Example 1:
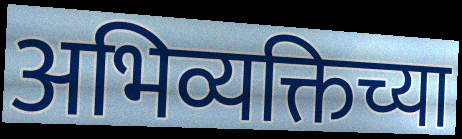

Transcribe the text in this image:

अभिव्यक्तिच्या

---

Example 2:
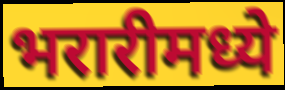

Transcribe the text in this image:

भरारीमध्ये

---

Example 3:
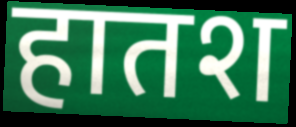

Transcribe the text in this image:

हातश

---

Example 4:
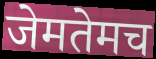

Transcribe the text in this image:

जेमतेमच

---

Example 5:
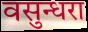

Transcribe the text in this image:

वसुन्धरा